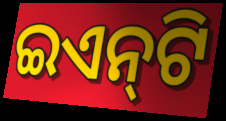
ଇଏନ୍‌ଟି